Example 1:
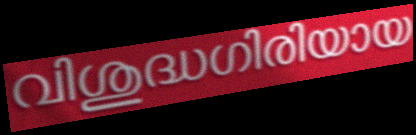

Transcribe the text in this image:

വിശുദ്ധഗിരിയായ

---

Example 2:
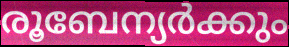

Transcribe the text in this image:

രൂബേന്യർക്കും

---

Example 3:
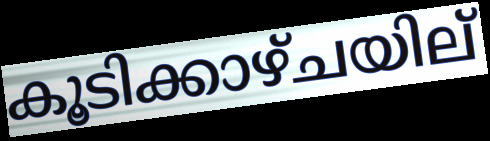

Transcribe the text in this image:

കൂടിക്കാഴ്ചയില്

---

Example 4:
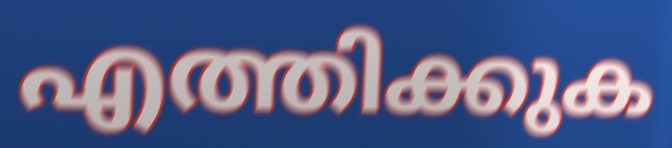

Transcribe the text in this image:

എത്തിക്കുക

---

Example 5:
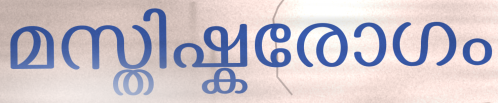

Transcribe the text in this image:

മസ്തിഷ്കരോഗം